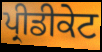
ਪ੍ਰੀਡੀਕੇਟ